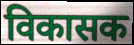
विकासक